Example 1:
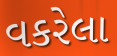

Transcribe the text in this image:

વકરેલા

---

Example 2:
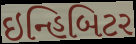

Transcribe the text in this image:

ઇન્હિબિટર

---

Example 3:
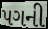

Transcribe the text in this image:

પગની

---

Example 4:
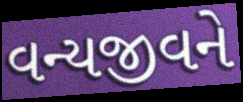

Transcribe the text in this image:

વન્યજીવને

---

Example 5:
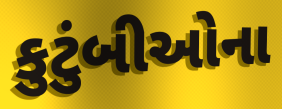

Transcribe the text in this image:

કુટુંબીઓના